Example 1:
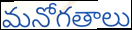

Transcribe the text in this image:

మనోగతాలు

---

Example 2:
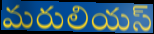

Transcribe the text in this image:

మరులియస్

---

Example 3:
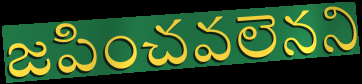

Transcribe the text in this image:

జపించవలెనని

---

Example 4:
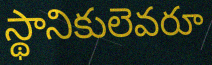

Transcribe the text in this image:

స్థానికులెవరూ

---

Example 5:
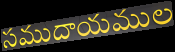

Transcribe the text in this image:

సముదాయముల